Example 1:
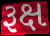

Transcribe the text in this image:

રૂક્ષ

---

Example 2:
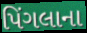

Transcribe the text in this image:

પિંગલાના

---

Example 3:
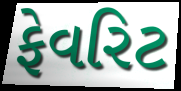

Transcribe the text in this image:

ફેવરિટ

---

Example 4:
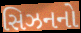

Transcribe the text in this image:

સિઝનનો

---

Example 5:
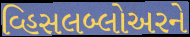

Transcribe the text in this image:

વ્હિસલબ્લોઅરને